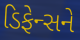
ડિફેન્સને